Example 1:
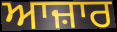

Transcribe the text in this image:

ਆਜ਼ਾਰ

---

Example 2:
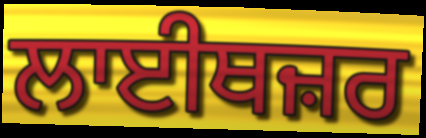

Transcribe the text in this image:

ਲਾਈਥਜ਼ਰ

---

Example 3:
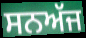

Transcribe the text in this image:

ਸਨਅੱਜ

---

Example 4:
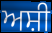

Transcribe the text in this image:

ਅਸ਼ੀ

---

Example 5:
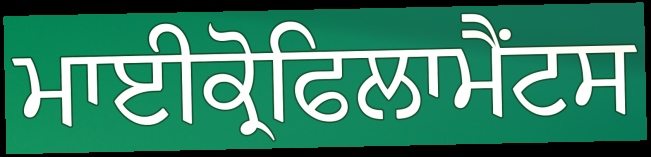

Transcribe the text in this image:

ਮਾਈਕ੍ਰੋਫਿਲਾਮੈਂਟਸ